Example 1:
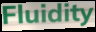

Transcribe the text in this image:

Fluidity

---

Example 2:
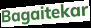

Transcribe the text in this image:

Bagaitekar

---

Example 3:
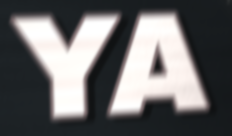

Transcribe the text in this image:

YA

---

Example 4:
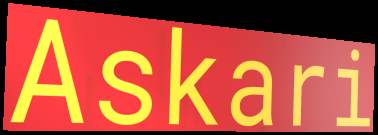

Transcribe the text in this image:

Askari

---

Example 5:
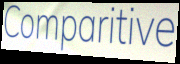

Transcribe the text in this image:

Comparitive